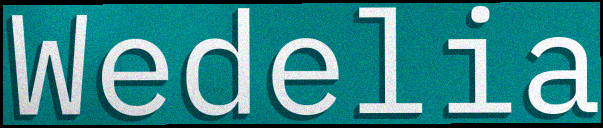
Wedelia